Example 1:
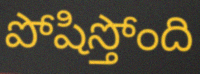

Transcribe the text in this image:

పోషిస్తోంది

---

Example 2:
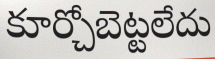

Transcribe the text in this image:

కూర్చోబెట్టలేదు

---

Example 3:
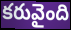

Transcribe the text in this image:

కరువైంది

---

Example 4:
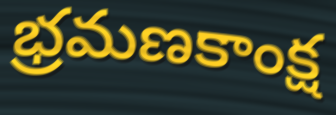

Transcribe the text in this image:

భ్రమణకాంక్ష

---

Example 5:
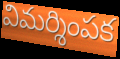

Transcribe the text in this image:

విమర్శింపక